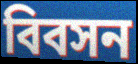
বিবসন